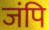
जंपि